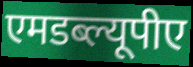
एमडब्ल्यूपीए